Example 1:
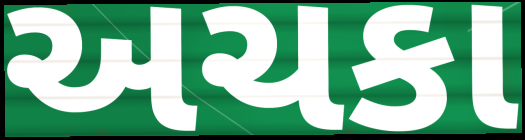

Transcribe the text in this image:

અચકા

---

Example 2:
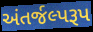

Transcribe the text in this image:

અંતર્જલ્પરૂપ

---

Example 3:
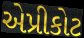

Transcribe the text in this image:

એપ્રીકોટ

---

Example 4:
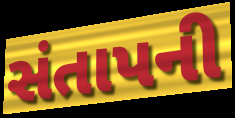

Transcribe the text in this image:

સંતાપની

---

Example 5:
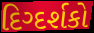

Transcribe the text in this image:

દિગ્દર્શકો